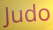
Judo